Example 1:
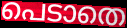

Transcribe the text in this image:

പെടാതെ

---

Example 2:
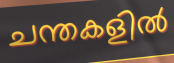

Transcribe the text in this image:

ചന്തകളിൽ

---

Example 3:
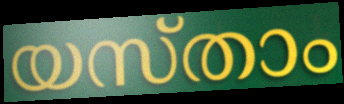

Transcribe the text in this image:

യസ്താം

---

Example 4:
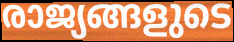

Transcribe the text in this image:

രാജ്യങ്ങളുടെ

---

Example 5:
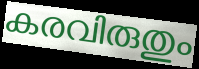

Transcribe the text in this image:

കരവിരുതും